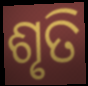
ଶୃତି